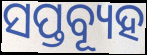
ସପ୍ତବ୍ୟୂହ